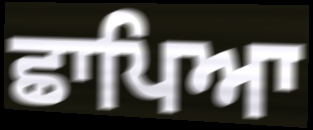
ਛਾਪਿਆ